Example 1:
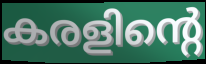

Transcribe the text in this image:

കരളിന്റെ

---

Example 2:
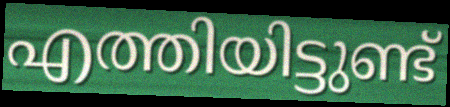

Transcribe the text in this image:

എത്തിയിട്ടുണ്ട്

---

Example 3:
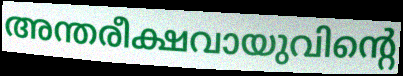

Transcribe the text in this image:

അന്തരീക്ഷവായുവിന്റെ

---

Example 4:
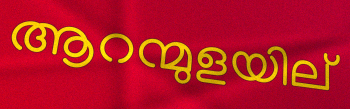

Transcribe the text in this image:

ആറന്മുളയില്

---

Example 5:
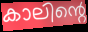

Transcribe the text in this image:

കാലിന്റെ